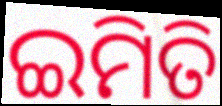
ଇମିତି